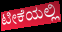
ಟೀಕೆಯಲ್ಲಿ